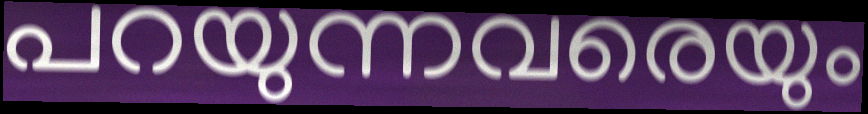
പറയുന്നവരെയും